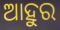
ଆହୁର